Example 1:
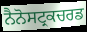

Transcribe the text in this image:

ਨੈਨੋਸਟ੍ਰਕਚਰਡ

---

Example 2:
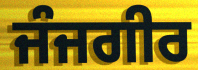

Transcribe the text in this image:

ਜੰਜਗੀਰ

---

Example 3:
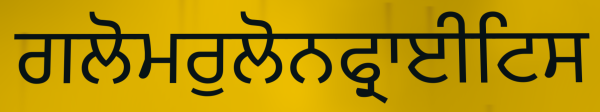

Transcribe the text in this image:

ਗਲੋਮਰੁਲੋਨਫ੍ਰਾਈਟਿਸ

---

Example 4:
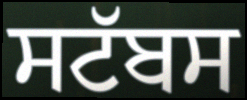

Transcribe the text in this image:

ਸਟੱਬਸ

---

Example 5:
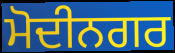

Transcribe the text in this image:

ਮੋਦੀਨਗਰ